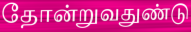
தோன்றுவதுண்டு